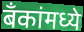
बँकांमध्ये